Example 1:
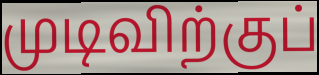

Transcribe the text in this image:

முடிவிற்குப்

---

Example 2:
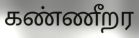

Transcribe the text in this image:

கண்ணீறர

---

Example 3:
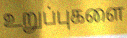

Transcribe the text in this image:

உறுப்புகளை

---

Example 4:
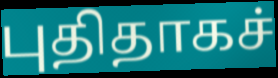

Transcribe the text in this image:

புதிதாகச்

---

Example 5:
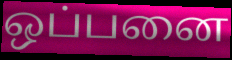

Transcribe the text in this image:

ஒப்பனை